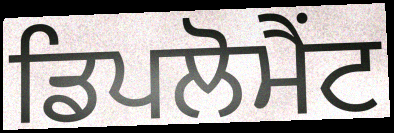
ਡਿਪਲੋਮੈਂਟ